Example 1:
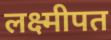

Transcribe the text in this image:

लक्ष्मीपत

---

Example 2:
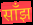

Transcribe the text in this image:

साँझ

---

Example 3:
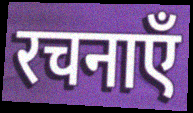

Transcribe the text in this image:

रचनाएँ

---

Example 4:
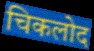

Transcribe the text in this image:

चिकलोद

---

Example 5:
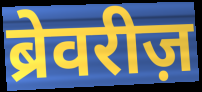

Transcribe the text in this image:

ब्रेवरीज़